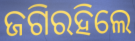
ଜଗିରହିଲେ